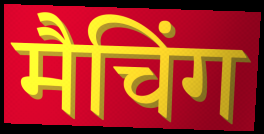
मैचिंग